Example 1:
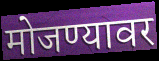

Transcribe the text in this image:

मोजण्यावर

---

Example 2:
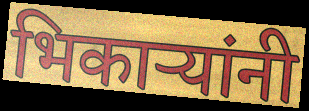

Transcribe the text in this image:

भिकाऱ्यांनी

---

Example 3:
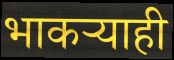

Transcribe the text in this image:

भाकऱ्याही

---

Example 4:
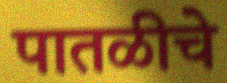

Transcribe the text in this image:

पातळीचे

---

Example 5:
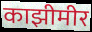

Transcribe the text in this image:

काझीमीर